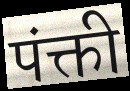
पंक्ती